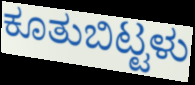
ಕೂತುಬಿಟ್ಟಳು